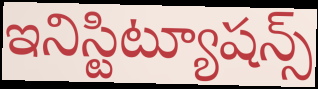
ఇనిస్టిట్యూషన్స్